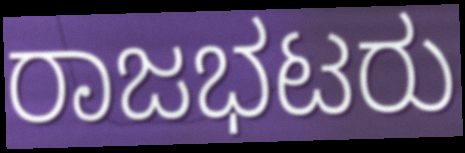
ರಾಜಭಟರು